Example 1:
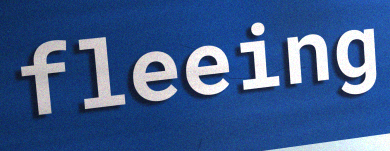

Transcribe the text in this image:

fleeing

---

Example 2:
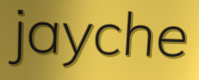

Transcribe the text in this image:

jayche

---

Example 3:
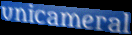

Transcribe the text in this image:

unicameral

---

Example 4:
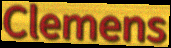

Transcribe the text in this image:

Clemens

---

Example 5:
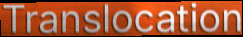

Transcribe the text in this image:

Translocation